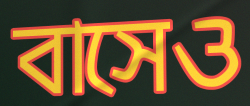
বাসেও